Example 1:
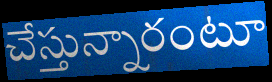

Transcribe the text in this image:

చేస్తున్నారంటూ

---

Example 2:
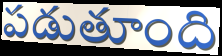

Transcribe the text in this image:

పడుతూంది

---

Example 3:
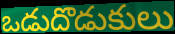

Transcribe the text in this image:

ఒడుదొడుకులు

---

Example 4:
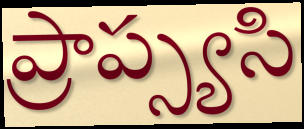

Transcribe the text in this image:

ప్రాప్స్యసి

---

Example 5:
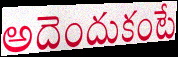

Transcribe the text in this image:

అదెందుకంటే